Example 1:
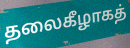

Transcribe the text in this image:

தலைகீழாகத்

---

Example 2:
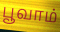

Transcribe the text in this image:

பூவாம்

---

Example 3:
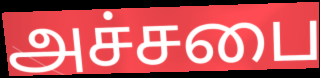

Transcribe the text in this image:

அச்சபை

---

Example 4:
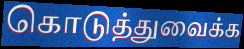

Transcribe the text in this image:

கொடுத்துவைக்க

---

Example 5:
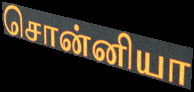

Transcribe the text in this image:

சொன்னியா